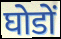
घोडों